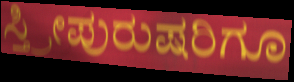
ಸ್ತ್ರೀಪುರುಷರಿಗೂ